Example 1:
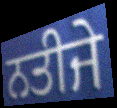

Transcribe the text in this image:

ਨਤੀਜੇ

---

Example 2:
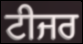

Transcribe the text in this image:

ਟੀਜਰ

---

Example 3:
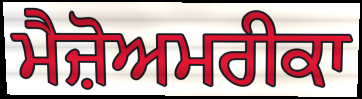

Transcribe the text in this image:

ਮੈਜ਼ੋਅਮਰੀਕਾ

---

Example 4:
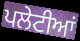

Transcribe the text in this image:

ਪਲੇਟੀਆਂ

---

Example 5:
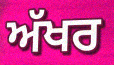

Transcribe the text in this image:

ਅੱਖਰ